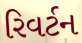
રિવર્ટન